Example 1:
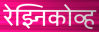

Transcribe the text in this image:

रेझ्निकोव्ह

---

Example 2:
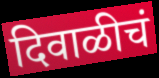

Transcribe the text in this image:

दिवाळीचं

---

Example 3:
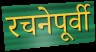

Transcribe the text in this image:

रचनेपूर्वी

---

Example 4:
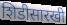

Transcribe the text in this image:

शिडीसारखी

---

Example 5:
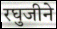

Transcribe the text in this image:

रघुजीने